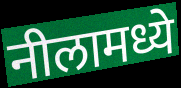
नीलामध्ये